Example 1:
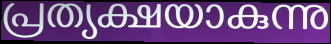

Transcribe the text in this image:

പ്രത്യക്ഷയാകുന്നു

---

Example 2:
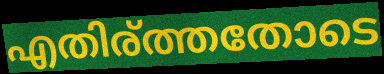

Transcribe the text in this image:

എതിര്ത്തതോടെ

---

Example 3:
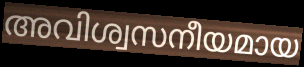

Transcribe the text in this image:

അവിശ്വസനീയമായ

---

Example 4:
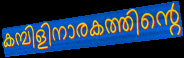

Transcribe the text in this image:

കമ്പിളിനാരകത്തിന്റെ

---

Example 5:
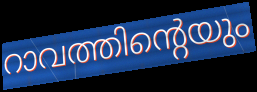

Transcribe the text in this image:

റാവത്തിന്റെയും